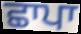
ਛਾਪਾ